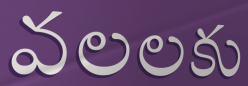
వలలకు